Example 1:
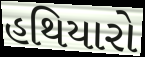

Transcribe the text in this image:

હથિયારો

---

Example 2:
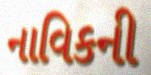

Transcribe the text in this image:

નાવિકની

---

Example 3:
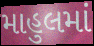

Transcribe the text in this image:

માહુલમાં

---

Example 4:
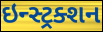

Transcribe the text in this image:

ઇન્સ્ટ્રક્શન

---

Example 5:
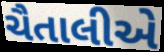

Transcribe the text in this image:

ચૈતાલીએ